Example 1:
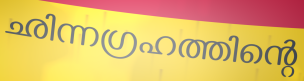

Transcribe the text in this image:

ഛിന്നഗ്രഹത്തിന്റെ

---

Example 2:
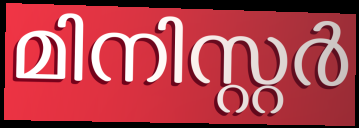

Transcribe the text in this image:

മിനിസ്റ്റർ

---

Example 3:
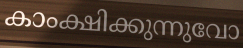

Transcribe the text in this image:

കാംക്ഷിക്കുന്നുവോ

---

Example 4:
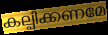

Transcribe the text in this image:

കല്പിക്കണമേ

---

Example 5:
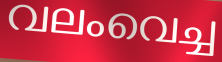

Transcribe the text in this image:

വലംവെച്ച